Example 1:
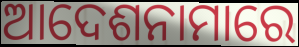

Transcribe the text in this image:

ଆଦେଶନାମାରେ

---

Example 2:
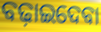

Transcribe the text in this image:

ବଢ଼ାଇଦେବା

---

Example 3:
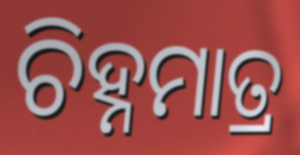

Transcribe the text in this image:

ଚିହ୍ନମାତ୍ର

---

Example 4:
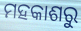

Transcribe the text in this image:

ମହକାଶରୁ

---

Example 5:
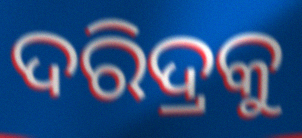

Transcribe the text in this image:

ଦରିଦ୍ରକୁ